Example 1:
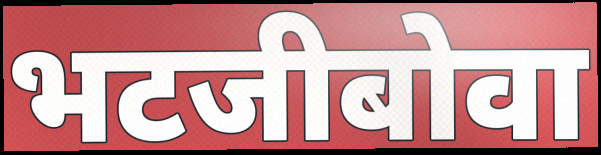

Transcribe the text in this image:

भटजीबोवा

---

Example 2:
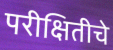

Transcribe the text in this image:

परीक्षितीचे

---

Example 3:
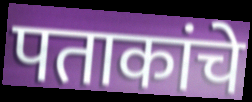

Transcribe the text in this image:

पताकांचे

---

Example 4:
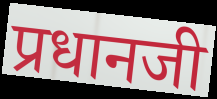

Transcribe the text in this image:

प्रधानजी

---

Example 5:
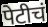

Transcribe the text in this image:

पेटीचं